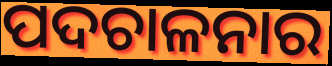
ପଦଚାଳନାର